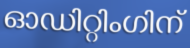
ഓഡിറ്റിംഗിന്